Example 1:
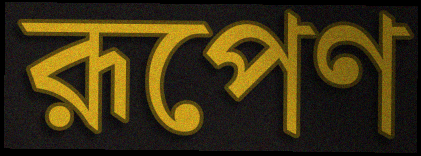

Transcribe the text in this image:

রূপেণ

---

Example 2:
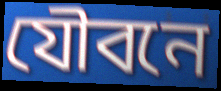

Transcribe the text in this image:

যৌবনে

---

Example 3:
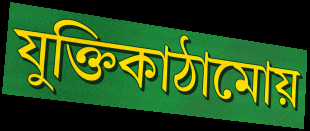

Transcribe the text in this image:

যুক্তিকাঠামোয়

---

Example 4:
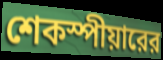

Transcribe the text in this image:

শেকস্পীয়ারের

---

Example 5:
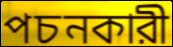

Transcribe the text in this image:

পচনকারী